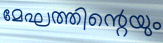
മേഘത്തിന്റെയും